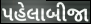
પહેલાબીજા